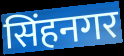
सिंहनगर